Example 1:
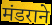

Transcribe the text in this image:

मंडराने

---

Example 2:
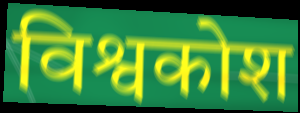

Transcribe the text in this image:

विश्वकोश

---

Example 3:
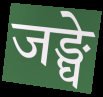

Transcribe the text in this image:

जङ्घे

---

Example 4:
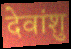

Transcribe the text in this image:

देवांशु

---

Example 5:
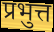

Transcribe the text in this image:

प्रभुत्त